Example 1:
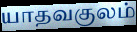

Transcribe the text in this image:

யாதவகுலம்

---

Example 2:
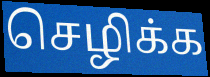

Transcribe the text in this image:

செழிக்க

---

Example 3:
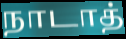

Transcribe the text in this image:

நாடாத்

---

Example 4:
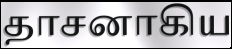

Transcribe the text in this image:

தாசனாகிய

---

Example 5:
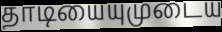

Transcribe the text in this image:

தாடியையுமுடைய